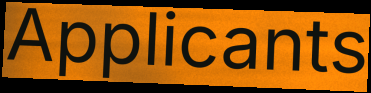
Applicants